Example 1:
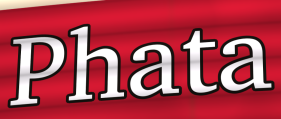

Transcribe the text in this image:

Phata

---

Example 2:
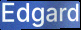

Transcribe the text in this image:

Edgard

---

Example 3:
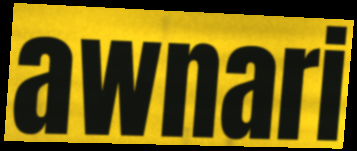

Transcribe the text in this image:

awnari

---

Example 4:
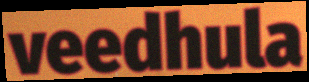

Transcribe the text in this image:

veedhula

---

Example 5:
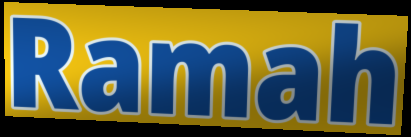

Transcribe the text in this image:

Ramah